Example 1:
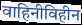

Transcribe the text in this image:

वाहिनीविहीन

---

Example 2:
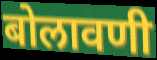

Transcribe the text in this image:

बोलावणी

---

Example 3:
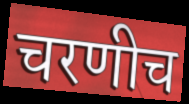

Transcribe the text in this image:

चरणीच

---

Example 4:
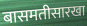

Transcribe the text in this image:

बासमतीसारखा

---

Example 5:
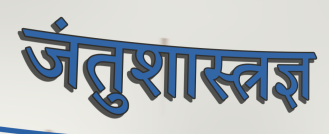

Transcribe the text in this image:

जंतुशास्त्रज्ञ